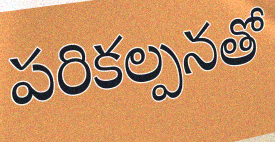
పరికల్పనతో